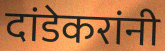
दांडेकरांनी